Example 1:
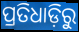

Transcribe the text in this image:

ପ୍ରତିଧାଡ଼ିରୁ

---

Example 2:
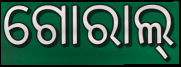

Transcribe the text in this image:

ଗୋରାଲ୍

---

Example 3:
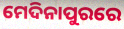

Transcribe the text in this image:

ମେଦିନାପୁରରେ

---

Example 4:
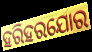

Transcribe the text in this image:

ହରିହରଯୋର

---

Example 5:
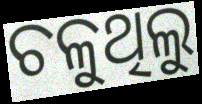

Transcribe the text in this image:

ଚଳୁଥିଲୁ